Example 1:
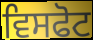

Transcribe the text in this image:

ਵਿਸਫੋਟ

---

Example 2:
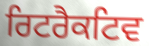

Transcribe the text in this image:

ਰਿਟਰੈਕਟਿਵ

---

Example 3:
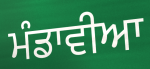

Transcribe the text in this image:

ਮੰਡਾਵੀਆ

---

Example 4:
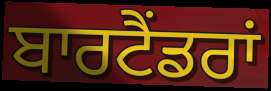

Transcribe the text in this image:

ਬਾਰਟੈਂਡਰਾਂ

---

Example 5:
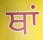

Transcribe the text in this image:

ਥਾਂ